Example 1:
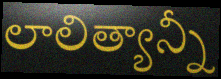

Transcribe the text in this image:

లాలిత్యాన్నీ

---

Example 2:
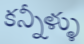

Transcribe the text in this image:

కన్నీళ్ళు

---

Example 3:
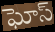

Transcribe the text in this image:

ఘోస్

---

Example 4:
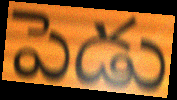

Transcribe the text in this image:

పెడు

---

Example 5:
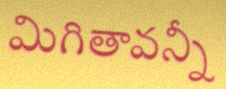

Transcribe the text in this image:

మిగితావన్నీ